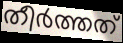
തീർത്തത്